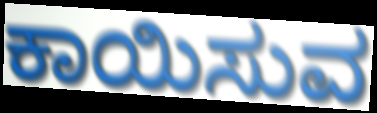
ಕಾಯಿಸುವ